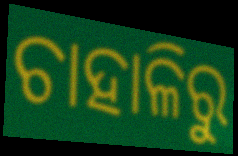
ଚାହାଳିରୁ